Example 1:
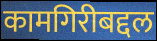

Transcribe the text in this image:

कामगिरीबद्दल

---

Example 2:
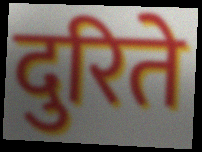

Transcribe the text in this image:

दुरिते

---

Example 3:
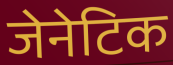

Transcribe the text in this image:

जेनेटिक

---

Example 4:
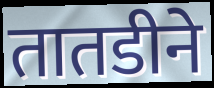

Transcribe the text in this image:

तातडीने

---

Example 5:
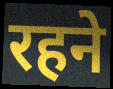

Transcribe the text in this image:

रहने